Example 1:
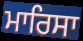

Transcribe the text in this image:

ਮਾਰਿਸਾ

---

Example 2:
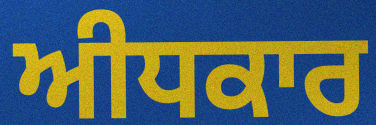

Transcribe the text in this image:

ਅੀਧਕਾਰ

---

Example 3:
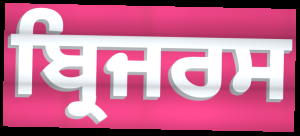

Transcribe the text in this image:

ਬ੍ਰਿਜਰਸ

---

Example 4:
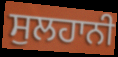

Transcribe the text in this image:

ਸੁਲਹਾਨੀ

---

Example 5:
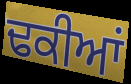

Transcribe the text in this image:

ਢਕੀਆਂ